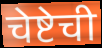
चेष्टेची